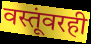
वस्तूंवरही